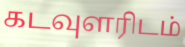
கடவுளரிடம்